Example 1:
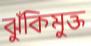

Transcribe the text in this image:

ঝুঁকিমুক্ত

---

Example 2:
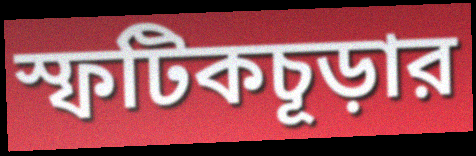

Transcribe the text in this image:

স্ফটিকচূড়ার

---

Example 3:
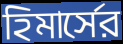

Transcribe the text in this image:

হিমার্সের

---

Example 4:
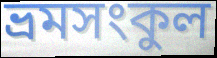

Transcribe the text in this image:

ভ্রমসংকুল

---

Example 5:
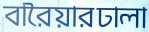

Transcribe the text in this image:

বারৈয়ারঢালা